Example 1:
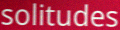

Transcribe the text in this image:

solitudes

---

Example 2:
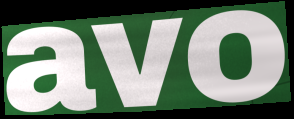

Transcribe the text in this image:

avo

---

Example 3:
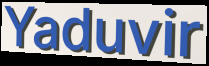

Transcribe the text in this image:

Yaduvir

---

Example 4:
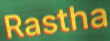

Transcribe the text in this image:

Rastha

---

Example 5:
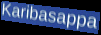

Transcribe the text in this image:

Karibasappa